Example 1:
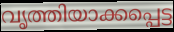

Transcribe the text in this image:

വൃത്തിയാക്കപ്പെട്ട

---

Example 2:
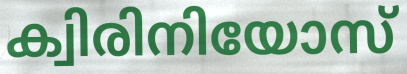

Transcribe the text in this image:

ക്വിരിനിയോസ്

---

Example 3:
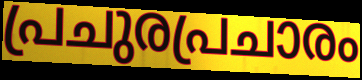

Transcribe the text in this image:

പ്രചുരപ്രചാരം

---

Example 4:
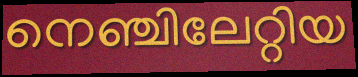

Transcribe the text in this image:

നെഞ്ചിലേറ്റിയ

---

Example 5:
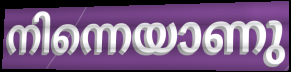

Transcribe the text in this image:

നിന്നെയാണു